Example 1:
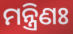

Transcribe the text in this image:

ମନ୍ତ୍ରିଣଃ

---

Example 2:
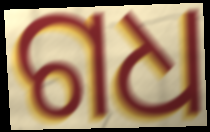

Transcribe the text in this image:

ଗଧ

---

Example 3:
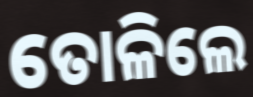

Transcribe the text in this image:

ତୋଳିଲେ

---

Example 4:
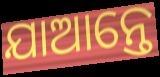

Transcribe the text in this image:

ଯାଆନ୍ତେ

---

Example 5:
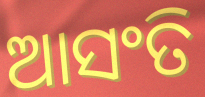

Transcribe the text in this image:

ଆସଂତି